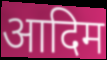
आदिम